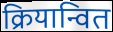
क्रियान्वित